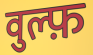
वुल्फ़